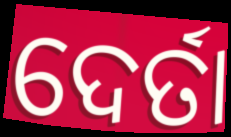
ଦେର୍ତା